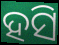
ହସି